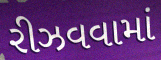
રીઝવવામાં